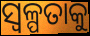
ସ୍ଵଳ୍ପତାକୁ